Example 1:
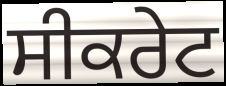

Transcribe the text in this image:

ਸੀਕਰੇਟ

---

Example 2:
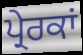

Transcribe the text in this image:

ਪ੍ਰੇਰਕਾਂ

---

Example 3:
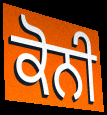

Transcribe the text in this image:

ਕੋਨੀ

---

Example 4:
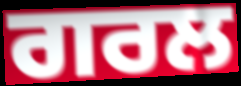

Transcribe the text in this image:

ਗਰਲ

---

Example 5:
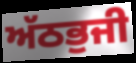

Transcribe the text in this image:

ਅੱਠਭੁਜੀ